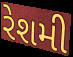
રેશમી